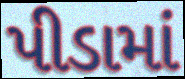
પીડામાં